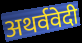
अथर्ववेदी